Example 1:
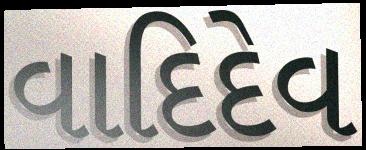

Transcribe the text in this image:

વાદિદેવ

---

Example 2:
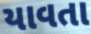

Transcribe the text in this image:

યાવતા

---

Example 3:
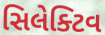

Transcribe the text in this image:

સિલેક્ટિવ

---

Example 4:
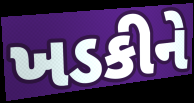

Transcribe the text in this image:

ખડકીને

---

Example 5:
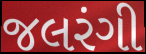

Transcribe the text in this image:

જલરંગી